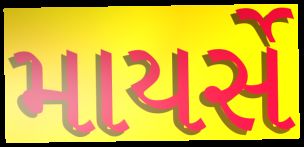
માયર્સે